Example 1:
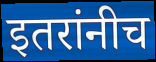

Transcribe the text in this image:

इतरांनीच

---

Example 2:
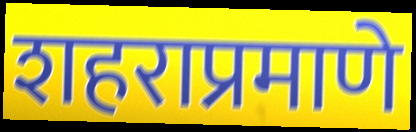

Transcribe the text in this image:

शहराप्रमाणे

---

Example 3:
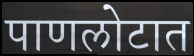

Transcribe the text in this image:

पाणलोटात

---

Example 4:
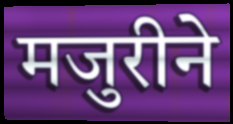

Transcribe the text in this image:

मजुरीने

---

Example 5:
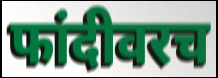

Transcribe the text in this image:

फांदीवरच